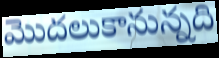
మొదలుకానున్నది